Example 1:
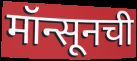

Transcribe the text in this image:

मॉन्सूनची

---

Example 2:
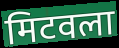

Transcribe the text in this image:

मिटवला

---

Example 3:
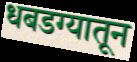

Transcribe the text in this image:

धबडग्यातून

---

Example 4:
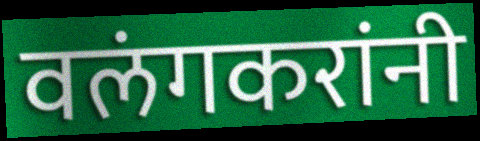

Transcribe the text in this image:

वलंगकरांनी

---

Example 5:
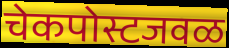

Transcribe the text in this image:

चेकपोस्टजवळ